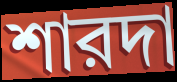
শারদা